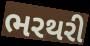
ભરથરી